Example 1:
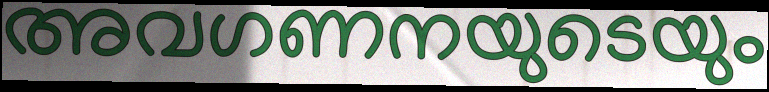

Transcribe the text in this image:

അവഗണനയുടെയും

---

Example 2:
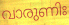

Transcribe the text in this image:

വാരുണിഃ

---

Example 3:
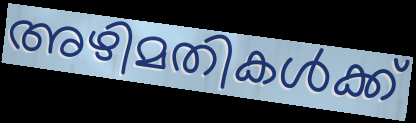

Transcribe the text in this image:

അഴിമതികൾക്ക്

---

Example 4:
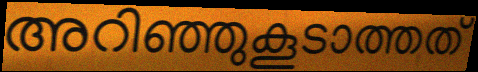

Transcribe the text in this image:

അറിഞ്ഞുകൂടാത്തത്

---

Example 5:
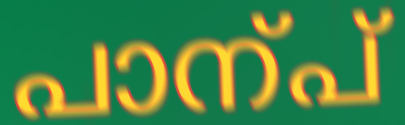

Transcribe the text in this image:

പാന്പ്